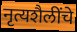
नृत्यशैलींचे